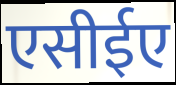
एसीईए